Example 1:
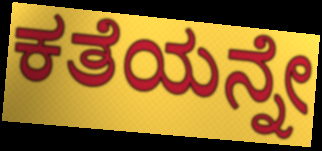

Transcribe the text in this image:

ಕತೆಯನ್ನೇ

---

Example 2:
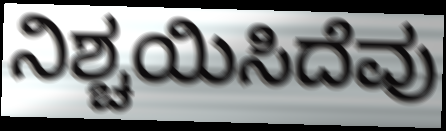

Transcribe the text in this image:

ನಿಶ್ಚಯಿಸಿದೆವು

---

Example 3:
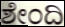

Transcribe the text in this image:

ಶೇಂದಿ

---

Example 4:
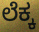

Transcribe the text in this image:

ಲೆಕ್ಕ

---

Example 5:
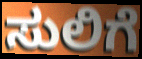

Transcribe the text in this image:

ಸುಲಿಗೆ